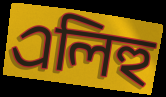
এলিহু